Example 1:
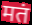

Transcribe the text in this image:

मतं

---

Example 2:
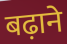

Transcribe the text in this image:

बढ़ाने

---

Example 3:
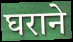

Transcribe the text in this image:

घराने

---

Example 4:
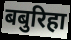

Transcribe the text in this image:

बबुरिहा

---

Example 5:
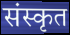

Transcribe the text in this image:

संस्कृत